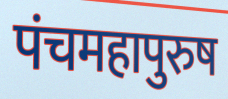
पंचमहापुरुष